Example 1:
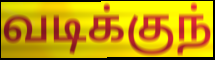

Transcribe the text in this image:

வடிக்குந்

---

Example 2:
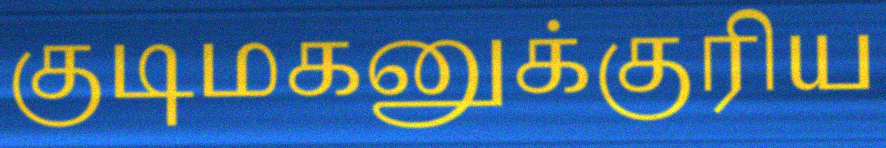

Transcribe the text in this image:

குடிமகனுக்குரிய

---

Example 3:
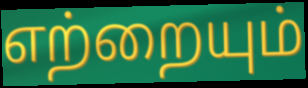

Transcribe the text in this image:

எற்றையும்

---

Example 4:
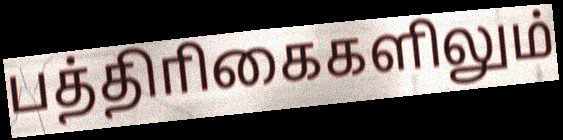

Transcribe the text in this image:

பத்திரிகைகளிலும்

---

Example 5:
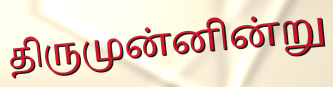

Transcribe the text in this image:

திருமுன்னின்று